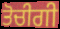
ਤੋਚੀਗੀ